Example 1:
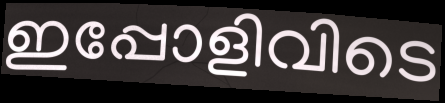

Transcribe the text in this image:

ഇപ്പോളിവിടെ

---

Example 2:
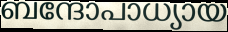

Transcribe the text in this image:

ബന്ദോപാധ്യായ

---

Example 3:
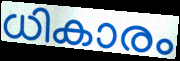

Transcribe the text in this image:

ധികാരം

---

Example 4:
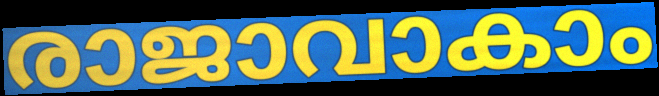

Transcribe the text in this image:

രാജാവാകാം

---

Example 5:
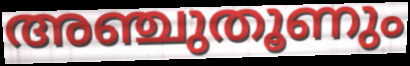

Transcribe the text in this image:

അഞ്ചുതൂണും